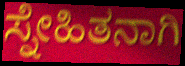
ಸ್ನೇಹಿತನಾಗಿ